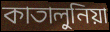
কাতালুনিয়া